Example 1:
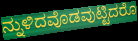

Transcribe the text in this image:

ನ್ನುಳಿದವೊಡವುಟ್ಟಿದರೊ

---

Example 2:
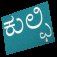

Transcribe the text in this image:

ಕುಲ್ಫಿ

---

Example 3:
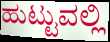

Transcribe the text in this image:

ಹುಟ್ಟುವಲ್ಲಿ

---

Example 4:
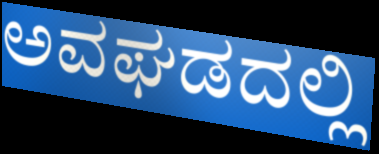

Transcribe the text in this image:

ಅವಘಡದಲ್ಲಿ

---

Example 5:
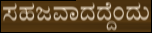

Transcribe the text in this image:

ಸಹಜವಾದದ್ದೆಂದು